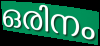
ഒരിനം